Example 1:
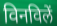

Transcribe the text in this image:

विनविलें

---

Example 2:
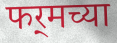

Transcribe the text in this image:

फर्मच्या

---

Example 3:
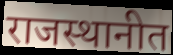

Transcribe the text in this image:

राजस्थानीत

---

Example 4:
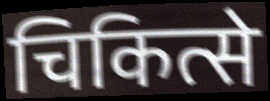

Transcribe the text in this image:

चिकित्से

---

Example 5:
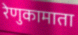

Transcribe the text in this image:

रेणुकामाता